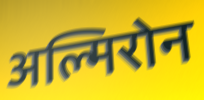
अल्मिरोन